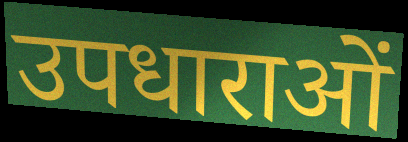
उपधाराओं